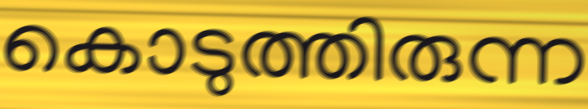
കൊടുത്തിരുന്ന